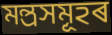
মন্ত্ৰসমূহৰ